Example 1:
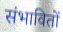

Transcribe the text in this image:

संभावितों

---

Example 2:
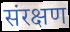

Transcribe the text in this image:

संरक्षण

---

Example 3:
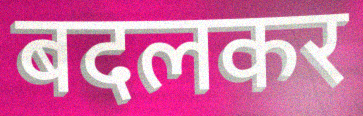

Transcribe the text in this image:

बदलकर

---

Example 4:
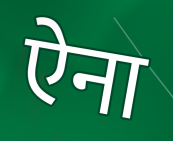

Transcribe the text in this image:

ऐना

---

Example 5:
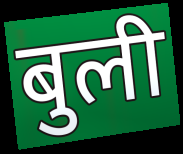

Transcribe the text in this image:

बुली